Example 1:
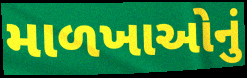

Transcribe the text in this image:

માળખાઓનું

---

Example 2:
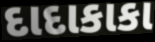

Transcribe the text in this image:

દાદાકાકા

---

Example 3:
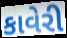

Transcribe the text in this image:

કાવેરી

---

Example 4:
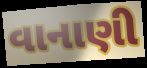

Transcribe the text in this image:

વાનાણી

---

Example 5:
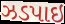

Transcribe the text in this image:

ઝડપાઇ